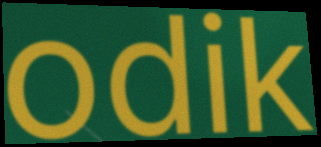
odik